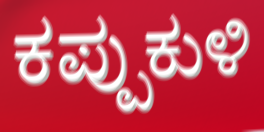
ಕಪ್ಪುಕುಳಿ